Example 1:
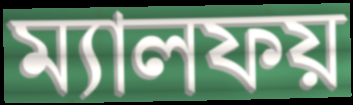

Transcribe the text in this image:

ম্যালফয়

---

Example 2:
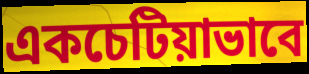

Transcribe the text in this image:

একচেটিয়াভাবে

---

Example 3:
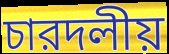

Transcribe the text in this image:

চারদলীয়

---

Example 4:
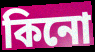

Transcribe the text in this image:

কিনো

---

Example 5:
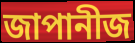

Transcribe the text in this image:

জাপানীজ